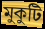
মুকুটি